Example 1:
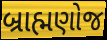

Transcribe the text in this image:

બ્રાહ્મણોજ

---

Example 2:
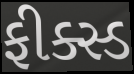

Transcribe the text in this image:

ફીક્સ્ડ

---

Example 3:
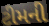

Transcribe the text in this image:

ટીમની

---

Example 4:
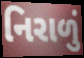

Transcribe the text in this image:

નિરાળું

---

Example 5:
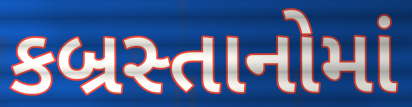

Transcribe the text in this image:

કબ્રસ્તાનોમાં